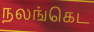
நலங்கெட